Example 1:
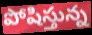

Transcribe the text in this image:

పోషిస్తున్న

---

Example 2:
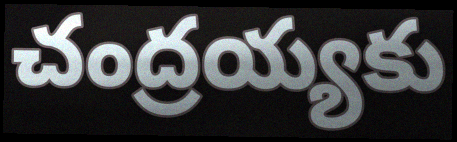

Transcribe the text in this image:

చంద్రయ్యకు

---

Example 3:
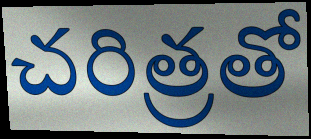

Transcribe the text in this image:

చరిత్రతో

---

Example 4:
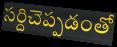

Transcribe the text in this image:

సర్దిచెప్పడంతో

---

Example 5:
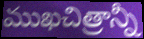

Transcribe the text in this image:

ముఖచిత్రాన్నీ